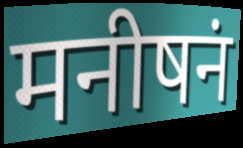
मनीषनं